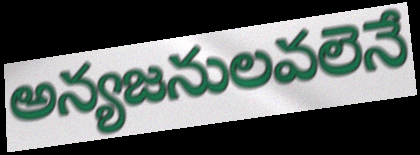
అన్యజనులవలెనే